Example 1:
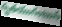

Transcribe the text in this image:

గృతయుగంబున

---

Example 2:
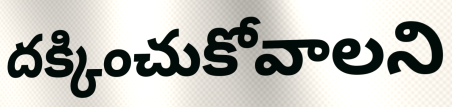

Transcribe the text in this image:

దక్కించుకోవాలని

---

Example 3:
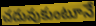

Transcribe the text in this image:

చదువుకుంటూనే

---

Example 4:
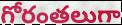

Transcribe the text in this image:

గోరంతలుగా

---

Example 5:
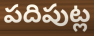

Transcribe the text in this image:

పదిపుట్ల